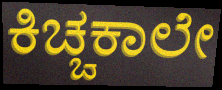
ಕಿಚ್ಚಕಾಲೇ